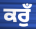
ਕਰੁਁ